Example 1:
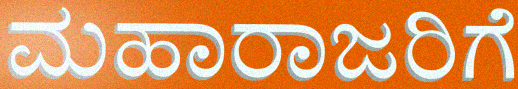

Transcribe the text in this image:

ಮಹಾರಾಜರಿಗೆ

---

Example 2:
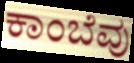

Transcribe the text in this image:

ಕಾಂಬೆವು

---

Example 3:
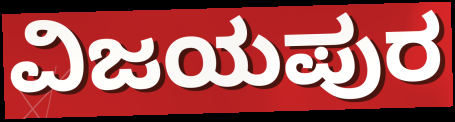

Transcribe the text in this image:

ವಿಜಯಪುರ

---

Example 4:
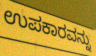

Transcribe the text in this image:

ಉಪಕಾರವನ್ನು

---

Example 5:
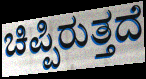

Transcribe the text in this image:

ಚಿಪ್ಪಿರುತ್ತದೆ